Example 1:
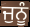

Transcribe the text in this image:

ਜੁਨੂੰ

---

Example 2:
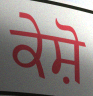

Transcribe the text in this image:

ਕੇਸ਼ੋ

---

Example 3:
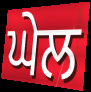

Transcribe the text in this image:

ਘੇਲ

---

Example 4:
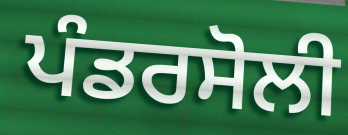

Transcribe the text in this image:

ਪੰਡਰਸੋਲੀ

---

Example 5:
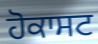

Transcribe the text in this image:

ਹੋਕਾਸਟ